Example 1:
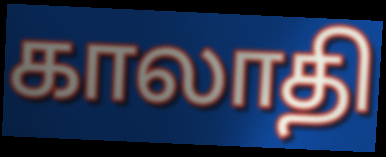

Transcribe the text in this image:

காலாதி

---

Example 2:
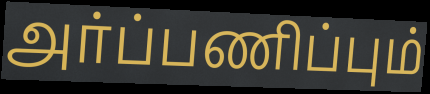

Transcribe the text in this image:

அர்ப்பணிப்பும்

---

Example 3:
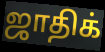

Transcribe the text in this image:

ஜாதிக்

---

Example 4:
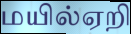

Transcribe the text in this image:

மயில்ஏறி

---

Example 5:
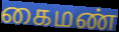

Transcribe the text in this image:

கைமண்